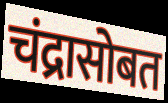
चंद्रासोबत